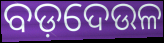
ବଡ଼ଦେଉଳ